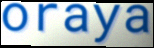
oraya